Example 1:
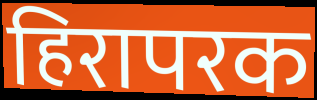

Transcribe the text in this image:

हिरापरक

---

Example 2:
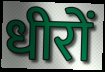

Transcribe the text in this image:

धीरों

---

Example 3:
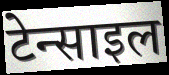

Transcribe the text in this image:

टेन्साइल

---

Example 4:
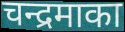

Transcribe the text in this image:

चन्द्रमाका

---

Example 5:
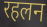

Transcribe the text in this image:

रहलन